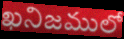
ఖనిజములో